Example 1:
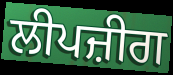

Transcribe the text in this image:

ਲੀਪਜ਼ੀਗ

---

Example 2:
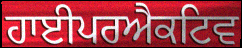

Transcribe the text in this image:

ਹਾਈਪਰਐਕਟਿਵ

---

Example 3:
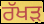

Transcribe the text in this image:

ਰੱਖੜ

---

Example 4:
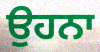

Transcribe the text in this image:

ਉਹਨਾ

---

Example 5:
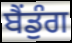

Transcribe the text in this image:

ਬੈਂਡੁੰਗ